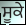
ਸੂਕੇ